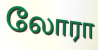
லோரா